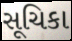
સૂચિકા